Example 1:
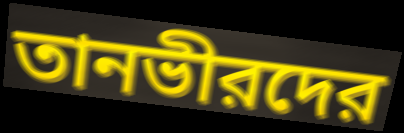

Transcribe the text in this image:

তানভীরদের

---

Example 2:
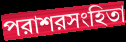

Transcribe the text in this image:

পরাশরসংহিতা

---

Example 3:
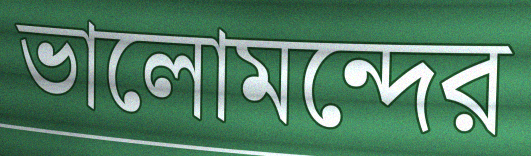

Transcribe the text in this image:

ভালোমন্দের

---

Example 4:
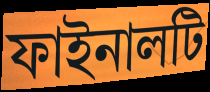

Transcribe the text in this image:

ফাইনালটি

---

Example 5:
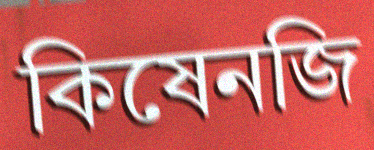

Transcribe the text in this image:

কিষেনজি